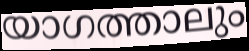
യാഗത്താലും